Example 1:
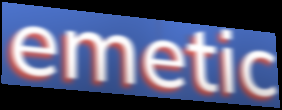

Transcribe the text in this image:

emetic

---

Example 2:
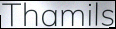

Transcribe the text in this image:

Thamils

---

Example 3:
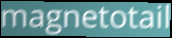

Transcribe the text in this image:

magnetotail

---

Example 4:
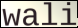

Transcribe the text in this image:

wali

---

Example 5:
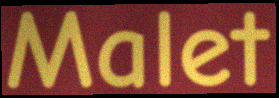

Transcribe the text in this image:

Malet